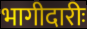
भागीदारीः